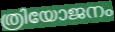
ത്രിയോജനം